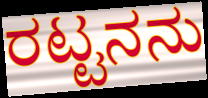
ರಟ್ಟನನು